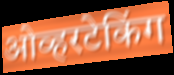
ओव्हरटेकिंग